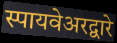
स्पायवेअरद्वारे